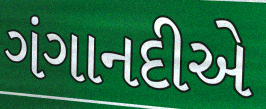
ગંગાનદીએ